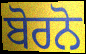
ਬੋਰਨੋ